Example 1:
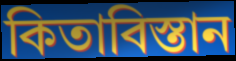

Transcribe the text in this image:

কিতাবিস্তান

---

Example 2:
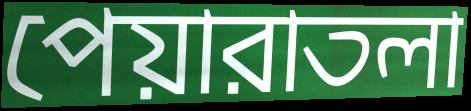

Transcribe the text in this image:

পেয়ারাতলা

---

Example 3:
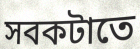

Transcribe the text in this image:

সবকটাতে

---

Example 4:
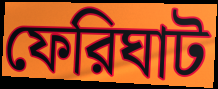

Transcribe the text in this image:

ফেরিঘাট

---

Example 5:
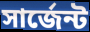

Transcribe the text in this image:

সার্জেন্ট